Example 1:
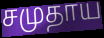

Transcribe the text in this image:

சமுதாய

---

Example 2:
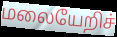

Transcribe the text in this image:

மலையேறிச்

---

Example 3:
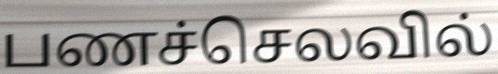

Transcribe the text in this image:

பணச்செலவில்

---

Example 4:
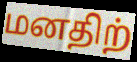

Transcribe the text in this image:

மனதிற்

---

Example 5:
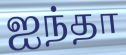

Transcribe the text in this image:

ஐந்தா